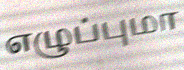
எழுப்புமா